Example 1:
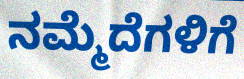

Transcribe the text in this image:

ನಮ್ಮೆದೆಗಳಿಗೆ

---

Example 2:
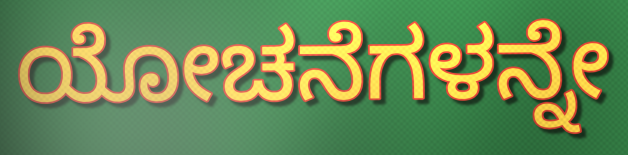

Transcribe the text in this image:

ಯೋಚನೆಗಳನ್ನೇ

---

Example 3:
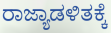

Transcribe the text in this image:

ರಾಜ್ಯಾಡಳಿತಕ್ಕೆ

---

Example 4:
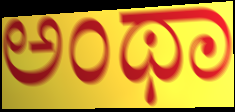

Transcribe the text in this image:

ಅಂಥಾ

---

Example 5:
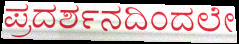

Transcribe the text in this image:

ಪ್ರದರ್ಶನದಿಂದಲೇ